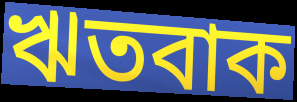
ঋতবাক